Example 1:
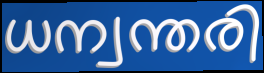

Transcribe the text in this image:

ധന്വന്തരി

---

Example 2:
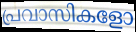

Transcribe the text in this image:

പ്രവാസികളോ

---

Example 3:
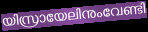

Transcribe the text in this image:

യിസ്രായേലിനുംവേണ്ടി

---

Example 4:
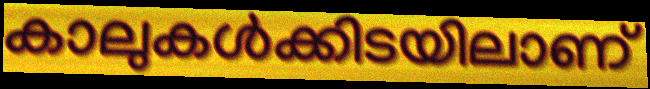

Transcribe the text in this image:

കാലുകൾക്കിടയിലാണ്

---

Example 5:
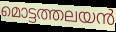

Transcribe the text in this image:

മൊട്ടത്തലയൻ